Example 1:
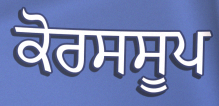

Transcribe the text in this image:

ਕੋਰਸਸੂਪ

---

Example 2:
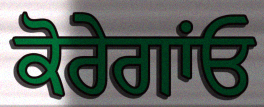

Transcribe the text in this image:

ਕੋਰੇਗਾਂਓ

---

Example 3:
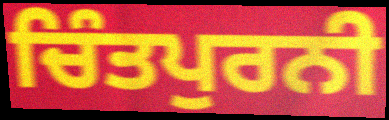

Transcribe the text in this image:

ਚਿੰਤਪੁਰਨੀ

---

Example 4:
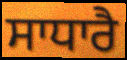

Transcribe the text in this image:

ਸਾਧਾਰੈ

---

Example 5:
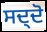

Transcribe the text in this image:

ਸਦ੍ਦੋ